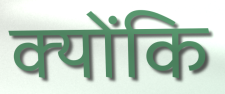
क्‍योंकि